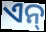
ଏନ୍